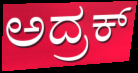
ಅದ್ರಕ್